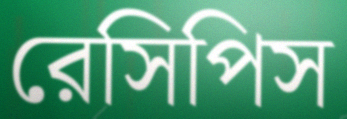
রেসিপিস